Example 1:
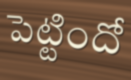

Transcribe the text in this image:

పెట్టిందో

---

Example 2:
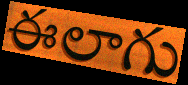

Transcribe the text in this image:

ఈలాగు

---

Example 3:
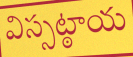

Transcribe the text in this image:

విస్సట్ఠాయ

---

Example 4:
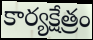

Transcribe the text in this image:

కార్యక్షేత్రం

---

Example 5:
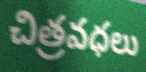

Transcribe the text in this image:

చిత్రవధలు